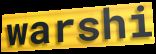
warshi